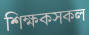
শিক্ষকসকল